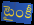
టైంకీ